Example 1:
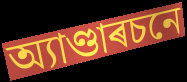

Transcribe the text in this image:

অ্যাণ্ডাৰচনে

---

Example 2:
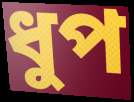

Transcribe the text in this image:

ধুপ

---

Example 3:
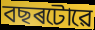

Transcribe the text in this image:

বছৰটোৱে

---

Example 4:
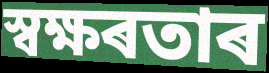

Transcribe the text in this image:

স্বক্ষৰতাৰ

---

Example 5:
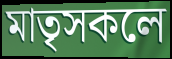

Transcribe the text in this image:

মাতৃসকলে